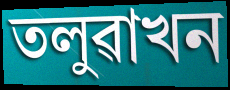
তলুৱাখন